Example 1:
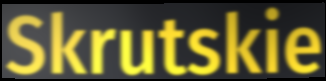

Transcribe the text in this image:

Skrutskie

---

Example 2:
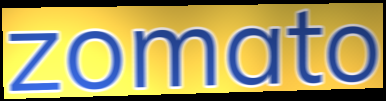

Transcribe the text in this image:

zomato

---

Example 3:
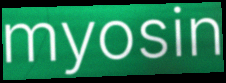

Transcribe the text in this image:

myosin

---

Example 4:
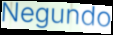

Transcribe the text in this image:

Negundo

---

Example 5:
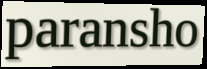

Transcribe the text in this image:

paransho